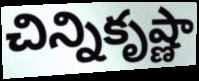
చిన్నికృష్ణా